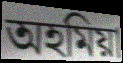
অহমিয়া